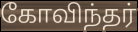
கோவிந்தர்